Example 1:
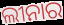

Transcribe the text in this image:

ଲୀନାର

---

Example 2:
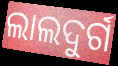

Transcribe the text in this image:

ଲାଲଦୁର୍ଗ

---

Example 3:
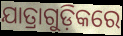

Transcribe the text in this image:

ଯାତ୍ରାଗୁଡ଼ିକରେ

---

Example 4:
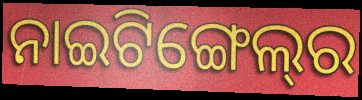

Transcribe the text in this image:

ନାଇଟିଙ୍ଗେଲ୍‌ର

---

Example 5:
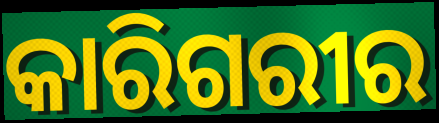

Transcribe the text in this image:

କାରିଗରୀର